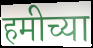
हमीच्या